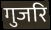
गुजरि